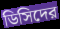
ডিসিদের